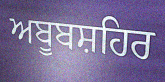
ਅਬੂਬਸ਼ਹਿਰ